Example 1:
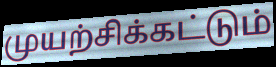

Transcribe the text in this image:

முயற்சிக்கட்டும்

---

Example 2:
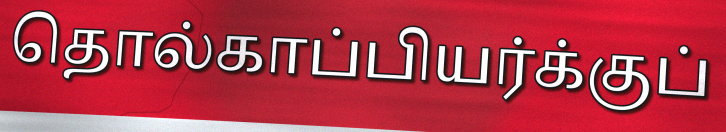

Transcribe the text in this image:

தொல்காப்பியர்க்குப்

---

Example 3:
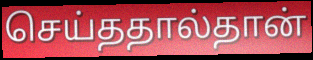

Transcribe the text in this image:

செய்ததால்தான்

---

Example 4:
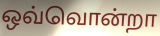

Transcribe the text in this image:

ஒவ்வொன்றா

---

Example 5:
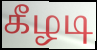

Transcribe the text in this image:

கீழடி